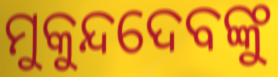
ମୁକୁନ୍ଦଦେବଙ୍କୁ